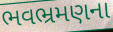
ભવભ્રમણના